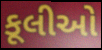
કૂલીઓ